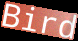
Bird